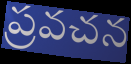
ప్రవచన